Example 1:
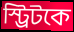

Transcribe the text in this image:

স্ট্রিটকে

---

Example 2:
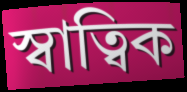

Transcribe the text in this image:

স্বাত্বিক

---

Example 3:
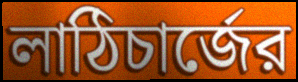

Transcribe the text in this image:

লাঠিচার্জের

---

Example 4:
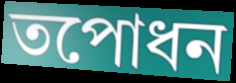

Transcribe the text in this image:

তপোধন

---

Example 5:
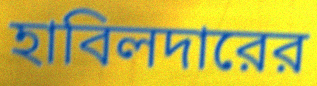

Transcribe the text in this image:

হাবিলদারের